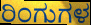
ರಿಂಗುಗಳ